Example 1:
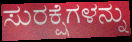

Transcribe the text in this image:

ಸುರಕ್ಷೆಗಳನ್ನು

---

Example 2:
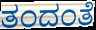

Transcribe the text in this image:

ತಂದಂತೆ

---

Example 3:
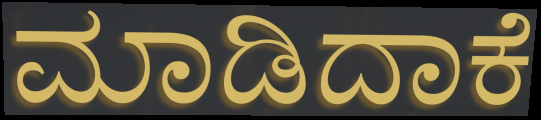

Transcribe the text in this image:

ಮಾಡಿದಾಕೆ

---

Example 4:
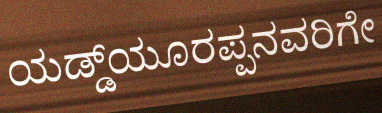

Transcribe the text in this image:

ಯಡ್ಡ್‌ಯೂರಪ್ಪನವರಿಗೇ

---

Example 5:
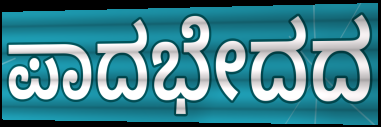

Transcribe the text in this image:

ಪಾದಭೇದದ